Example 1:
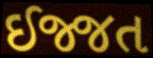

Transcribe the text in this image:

ઈજ્જત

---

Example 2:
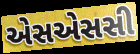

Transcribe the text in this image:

એસએસસી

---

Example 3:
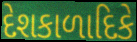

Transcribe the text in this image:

દેશકાળાદિકે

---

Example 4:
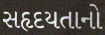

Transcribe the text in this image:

સહૃદયતાનો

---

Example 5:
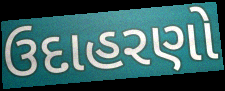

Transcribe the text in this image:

ઉદાહરણો